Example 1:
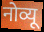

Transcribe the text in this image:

नोव्यू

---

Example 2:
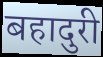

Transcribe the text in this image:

बहादुरी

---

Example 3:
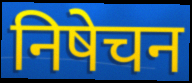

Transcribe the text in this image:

निषेचन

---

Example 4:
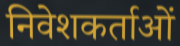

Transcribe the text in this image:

निवेशकर्ताओं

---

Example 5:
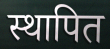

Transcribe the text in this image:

स्थापित